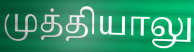
முத்தியாலு